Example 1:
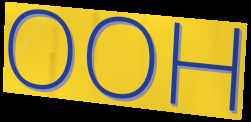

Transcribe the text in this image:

OOH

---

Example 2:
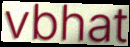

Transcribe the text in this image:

vbhat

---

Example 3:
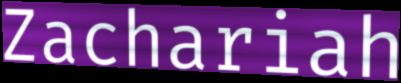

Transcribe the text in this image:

Zachariah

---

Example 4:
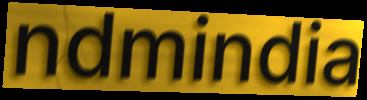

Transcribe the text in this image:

ndmindia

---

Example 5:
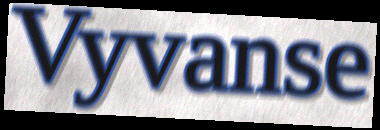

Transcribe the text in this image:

Vyvanse